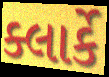
ક્લાર્કે